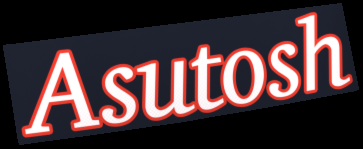
Asutosh